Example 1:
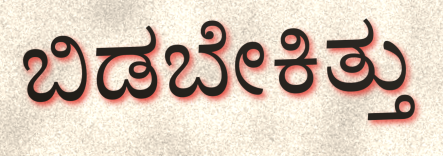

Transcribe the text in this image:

ಬಿಡಬೇಕಿತ್ತು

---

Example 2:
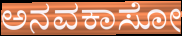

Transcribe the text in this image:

ಅನವಕಾಸೋ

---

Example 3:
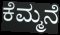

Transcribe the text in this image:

ಕೆಮ್ಮನೆ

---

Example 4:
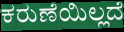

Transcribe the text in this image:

ಕರುಣೆಯಿಲ್ಲದೆ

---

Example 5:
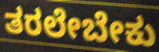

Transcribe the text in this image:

ತರಲೇಬೇಕು